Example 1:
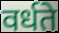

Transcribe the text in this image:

वर्धते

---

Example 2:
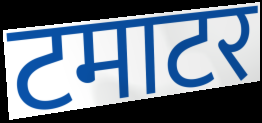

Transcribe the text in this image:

टमाटर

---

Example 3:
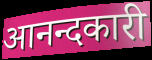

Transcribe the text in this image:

आनन्दकारी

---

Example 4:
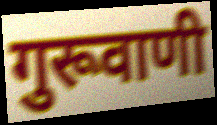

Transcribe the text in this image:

गुरूवाणी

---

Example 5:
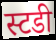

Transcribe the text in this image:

स्टडी